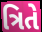
ત્રિતે